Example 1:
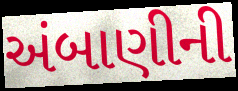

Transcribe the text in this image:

અંબાણીની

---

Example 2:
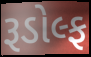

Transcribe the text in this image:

રૂડોલ્ફ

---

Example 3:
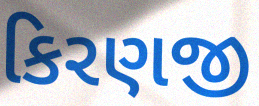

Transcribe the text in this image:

કિરણજી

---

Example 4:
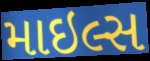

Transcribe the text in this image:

માઇલ્સ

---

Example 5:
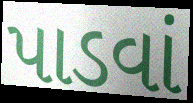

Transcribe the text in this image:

પાડવાં